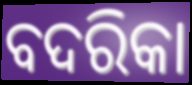
ବଦରିକା